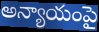
అన్యాయంపై